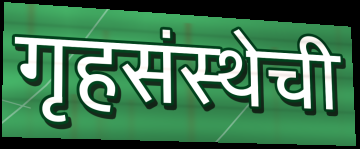
गृहसंस्थेची